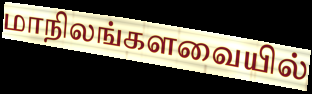
மாநிலங்களவையில்